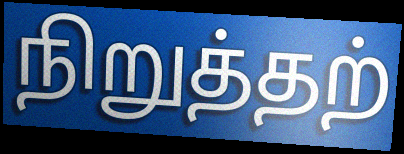
நிறுத்தற்